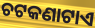
ଚଟକଣାଟାଏ